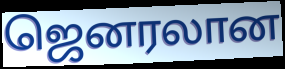
ஜெனரலான